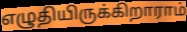
எழுதியிருக்கிறாராம்